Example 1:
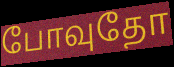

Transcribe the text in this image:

போவுதோ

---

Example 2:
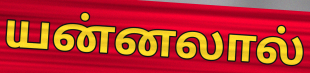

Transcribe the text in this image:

யன்னலால்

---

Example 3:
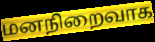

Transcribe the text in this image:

மனநிறைவாக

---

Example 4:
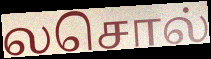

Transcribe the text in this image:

லசொல்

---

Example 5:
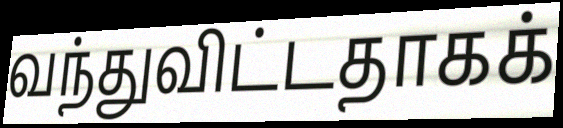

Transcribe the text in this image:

வந்துவிட்டதாகக்